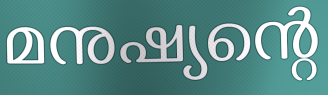
മനുഷ്യന്റെ